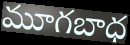
మూగబాధ